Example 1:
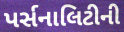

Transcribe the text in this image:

પર્સનાલિટીની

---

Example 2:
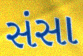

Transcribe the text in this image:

સંસા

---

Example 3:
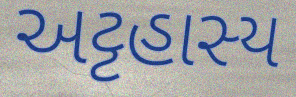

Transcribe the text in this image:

અટ્ટહાસ્ય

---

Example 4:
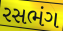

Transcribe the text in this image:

રસભંગ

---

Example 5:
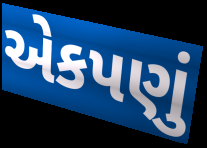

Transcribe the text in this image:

એકપણું